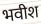
भवीश